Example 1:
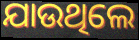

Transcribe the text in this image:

ଯାଉଥିଲେ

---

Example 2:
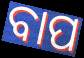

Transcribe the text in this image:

ବାପ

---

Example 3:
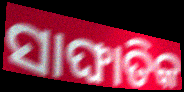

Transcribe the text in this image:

ସାଙ୍ଘାତିକ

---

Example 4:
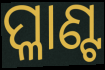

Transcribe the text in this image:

ପ୍ଳାଣ୍ଟ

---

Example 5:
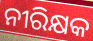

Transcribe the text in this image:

ନୀରିକ୍ଷକ